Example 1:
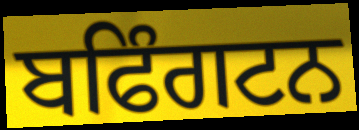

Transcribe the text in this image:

ਬਫਿੰਗਟਨ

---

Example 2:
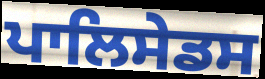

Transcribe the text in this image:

ਪਾਲਿਸੇਡਸ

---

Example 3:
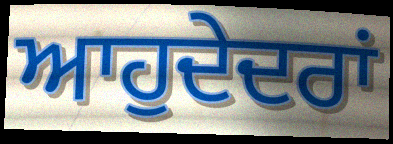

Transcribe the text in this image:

ਆਹੁਦੇਦਰਾਂ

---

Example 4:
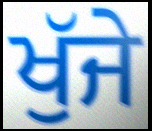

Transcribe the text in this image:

ਖੁੱਜੇ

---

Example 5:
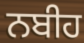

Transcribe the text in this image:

ਨਬੀਹ